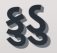
કુડુ